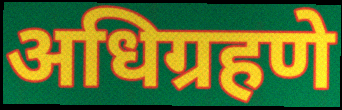
अधिग्रहणे